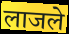
लाजले